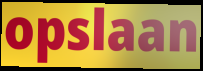
opslaan